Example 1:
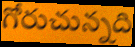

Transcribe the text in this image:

గోరుచున్నది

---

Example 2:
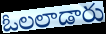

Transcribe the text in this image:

ఓలలాడారు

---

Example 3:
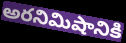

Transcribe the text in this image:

అరనిమిషానికి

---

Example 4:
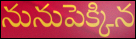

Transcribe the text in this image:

నునుపెక్కిన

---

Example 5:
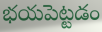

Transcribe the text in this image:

భయపెట్టడం